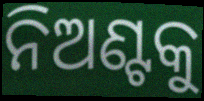
ନିଅଣ୍ଟକୁ